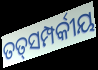
ତତ୍‍ସମ୍ପର୍କୀୟ